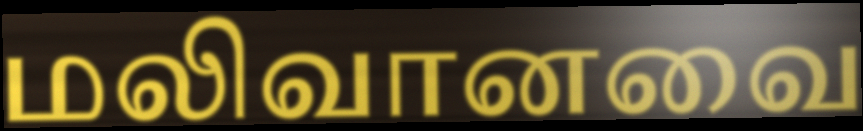
மலிவானவை